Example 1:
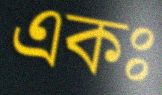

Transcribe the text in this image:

একঃ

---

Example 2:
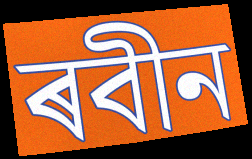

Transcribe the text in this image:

ৰবীন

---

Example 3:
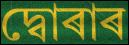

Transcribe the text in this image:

দ্বোৰাৰ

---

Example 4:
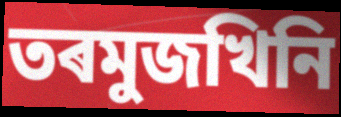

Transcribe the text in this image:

তৰমুজখিনি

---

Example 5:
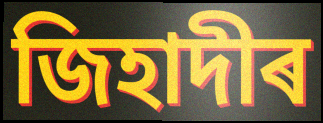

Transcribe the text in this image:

জিহাদীৰ